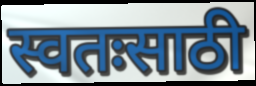
स्वतःसाठी